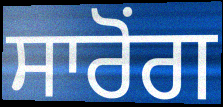
ਸਾਰੋਂਗ